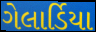
ગેલાર્ડિયા